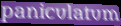
paniculatum